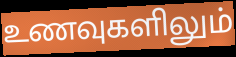
உணவுகளிலும்